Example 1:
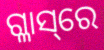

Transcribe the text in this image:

ଗ୍ଳାସ୍‌ରେ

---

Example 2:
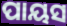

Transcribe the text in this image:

ପାୟସ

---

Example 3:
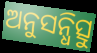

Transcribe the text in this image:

ଅନୁସନ୍ଧିତ୍ସୁ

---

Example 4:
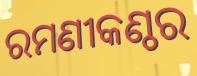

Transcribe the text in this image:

ରମଣୀକଣ୍ଠର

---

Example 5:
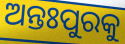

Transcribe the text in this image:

ଅନ୍ତଃପୁରକୁ